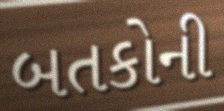
બતકોની